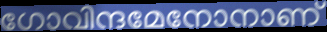
ഗോവിന്ദമേനോനാണ്